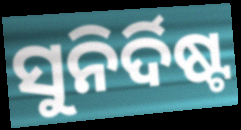
ସୁନିର୍ଦିଷ୍ଟ